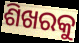
ଶିଖରକୁ